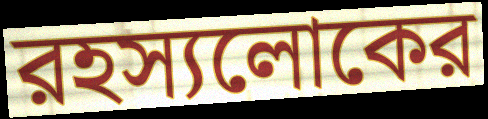
রহস্যলোকের